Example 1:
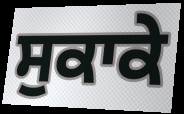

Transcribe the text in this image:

ਸੁਕਾਕੇ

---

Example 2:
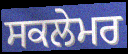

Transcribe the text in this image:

ਸਕਲੇਮਰ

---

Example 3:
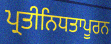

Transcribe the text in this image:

ਪ੍ਰਤੀਨਿਧਤਾਪੂਰਨ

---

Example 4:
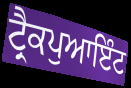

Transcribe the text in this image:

ਟ੍ਰੈਕਪੁਆਇੰਟ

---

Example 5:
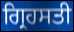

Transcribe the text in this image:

ਗ੍ਰਿਹਸਤੀ